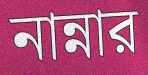
নান্নার